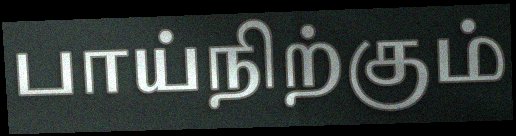
பாய்நிற்கும்